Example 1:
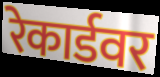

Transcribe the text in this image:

रेकार्डवर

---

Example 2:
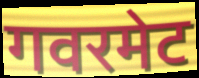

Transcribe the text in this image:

गवरमेट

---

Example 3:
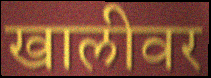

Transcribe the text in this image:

खालीवर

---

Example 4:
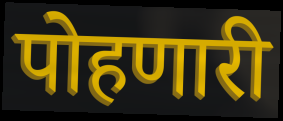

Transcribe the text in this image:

पोहणारी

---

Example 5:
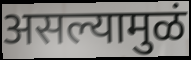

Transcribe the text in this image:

असल्यामुळं